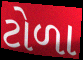
ટોળા